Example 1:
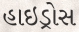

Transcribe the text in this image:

હાઇડ્રોસ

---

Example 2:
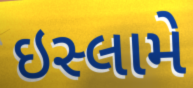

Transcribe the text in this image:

ઇસ્લામે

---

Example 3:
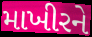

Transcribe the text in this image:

માખીરને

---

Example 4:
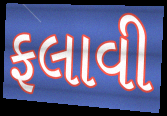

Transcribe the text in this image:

ફલાવી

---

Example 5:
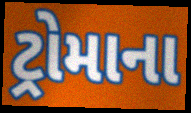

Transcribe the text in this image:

ટ્રોમાના